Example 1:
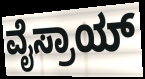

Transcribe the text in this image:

ವೈಸ್ರಾಯ್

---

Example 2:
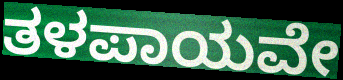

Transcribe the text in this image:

ತಳಪಾಯವೇ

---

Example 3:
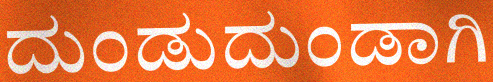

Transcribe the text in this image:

ದುಂಡುದುಂಡಾಗಿ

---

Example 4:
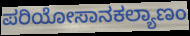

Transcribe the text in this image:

ಪರಿಯೋಸಾನಕಲ್ಯಾಣಂ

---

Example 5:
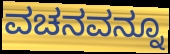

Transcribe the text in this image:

ವಚನವನ್ನೂ